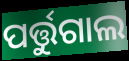
ପର୍ତ୍ତୁଗାଲ